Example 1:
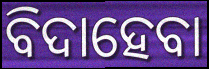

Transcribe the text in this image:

ବିଦାହେବା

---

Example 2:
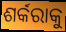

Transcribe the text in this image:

ଶର୍କରାକୁ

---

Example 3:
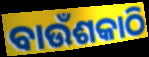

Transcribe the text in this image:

ବାଉଁଶକାଠି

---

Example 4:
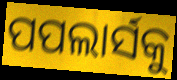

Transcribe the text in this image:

ପପଲାର୍ସକୁ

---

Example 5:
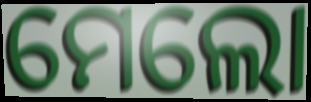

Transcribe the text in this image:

ମେଲୋ